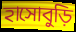
হাসোবুড়ি